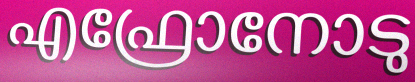
എഫ്രോനോടു